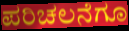
ಪರಿಚಲನೆಗೂ